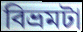
বিভ্রমটা